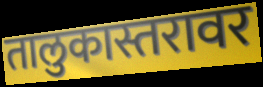
तालुकास्तरावर